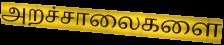
அறச்சாலைகளை